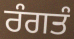
ਰੰਗਤੰ